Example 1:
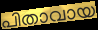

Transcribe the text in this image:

പിതാവായ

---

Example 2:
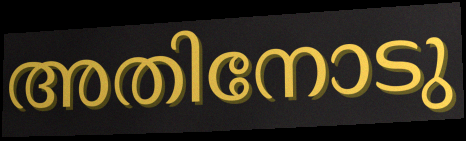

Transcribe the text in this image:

അതിനോടു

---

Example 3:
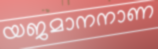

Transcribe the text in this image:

യജമാനനാണ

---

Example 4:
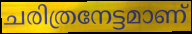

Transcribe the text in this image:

ചരിത്രനേട്ടമാണ്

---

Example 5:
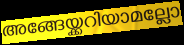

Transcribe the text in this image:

അങ്ങേയ്ക്കറിയാമല്ലോ